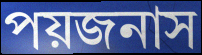
পয়জনাস